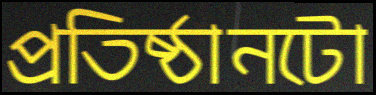
প্ৰতিষ্ঠানটো